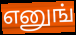
எனுங்